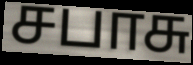
சபாசு